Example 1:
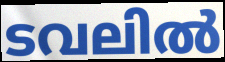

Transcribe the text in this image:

ടവലിൽ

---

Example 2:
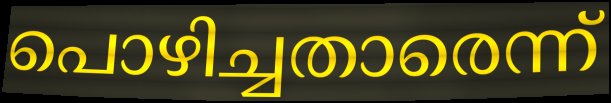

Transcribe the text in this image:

പൊഴിച്ചതാരെന്ന്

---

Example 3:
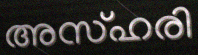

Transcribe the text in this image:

അസ്ഹരി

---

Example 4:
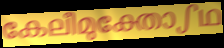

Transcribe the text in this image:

കേലീമുക്തോഽഥ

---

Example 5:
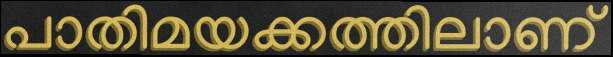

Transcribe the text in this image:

പാതിമയക്കത്തിലാണ്